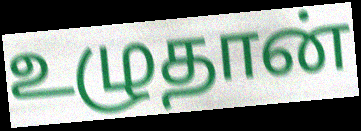
உழுதான்